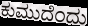
ಕುಮುದೆಂದು